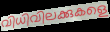
വിധിവിലക്കുകളെ